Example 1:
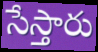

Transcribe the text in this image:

సేస్తారు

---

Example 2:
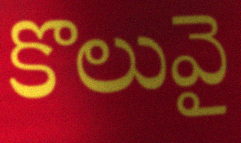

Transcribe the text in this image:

కొలువై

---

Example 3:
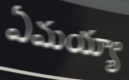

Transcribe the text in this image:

ఏమయ్యా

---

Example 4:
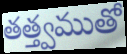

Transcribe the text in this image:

తత్త్వముతో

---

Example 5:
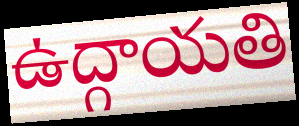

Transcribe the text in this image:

ఉద్గాయతి